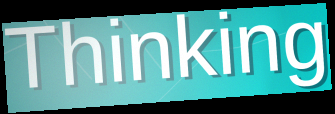
Thinking